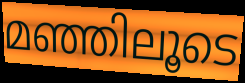
മഞ്ഞിലൂടെ